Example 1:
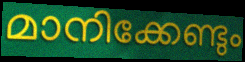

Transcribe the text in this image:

മാനിക്കേണ്ടും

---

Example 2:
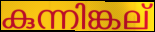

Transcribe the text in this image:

കുന്നിങ്കല്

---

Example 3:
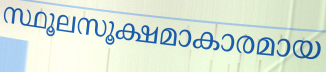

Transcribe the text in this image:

സ്ഥൂലസൂക്ഷമാകാരമായ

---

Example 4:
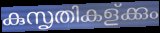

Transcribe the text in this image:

കുസൃതികള്ക്കും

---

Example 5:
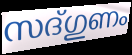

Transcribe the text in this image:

സദ്ഗുണം